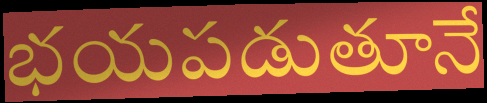
భయపడుతూనే